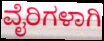
ವೈರಿಗಳಾಗಿ